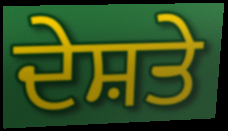
ਦੇਸ਼ਤੇ